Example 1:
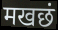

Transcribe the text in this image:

मखछं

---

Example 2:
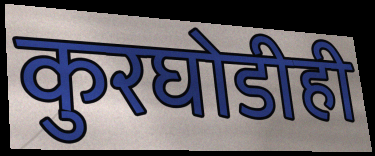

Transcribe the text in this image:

कुरघोडीही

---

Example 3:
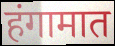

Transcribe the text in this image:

हंगामात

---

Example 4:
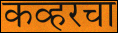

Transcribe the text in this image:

कव्हरचा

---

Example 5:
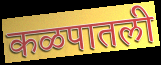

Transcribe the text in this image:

कळपातली